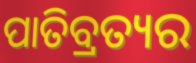
ପାତିବ୍ରତ୍ୟର